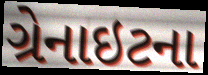
ગ્રેનાઇટના